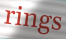
rings